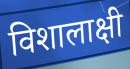
विशालाक्षी